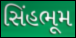
સિંહભૂમ